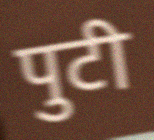
पुटी